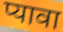
प्यावा